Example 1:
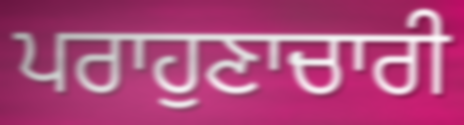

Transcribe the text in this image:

ਪਰਾਹੁਣਾਚਾਰੀ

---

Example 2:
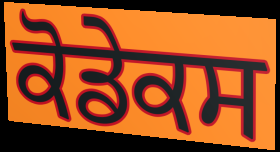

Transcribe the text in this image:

ਕੋਡੇਕਸ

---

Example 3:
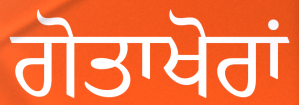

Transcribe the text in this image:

ਗੋਤਾਖੋਰਾਂ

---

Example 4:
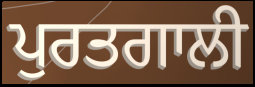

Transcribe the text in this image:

ਪੁਰਤਗਾਲੀ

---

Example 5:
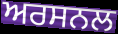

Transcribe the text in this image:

ਅਰਸਨਲ